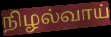
நிழல்வாய்